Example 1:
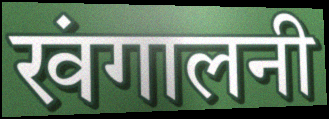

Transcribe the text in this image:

खंगालनी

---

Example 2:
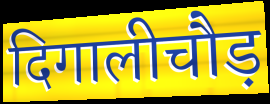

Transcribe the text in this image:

दिगालीचौड़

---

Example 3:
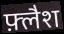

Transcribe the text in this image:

फ़्लैश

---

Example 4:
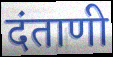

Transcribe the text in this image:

दंताणी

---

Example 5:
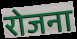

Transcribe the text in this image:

रोजना